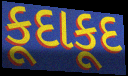
કૂદાકૂદ